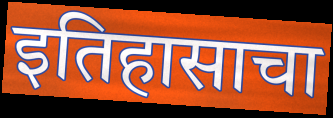
इतिहासाचा